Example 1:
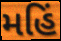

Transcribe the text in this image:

મહિં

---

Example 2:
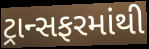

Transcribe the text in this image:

ટ્રાન્સફરમાંથી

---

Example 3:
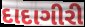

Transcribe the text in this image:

દાદાગીરી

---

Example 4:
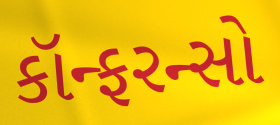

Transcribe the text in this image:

કૉન્ફરન્સો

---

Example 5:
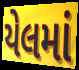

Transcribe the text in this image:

યેલમાં